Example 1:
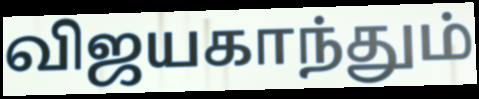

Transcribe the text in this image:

விஜயகாந்தும்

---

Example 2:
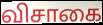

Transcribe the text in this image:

விசாகை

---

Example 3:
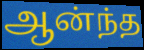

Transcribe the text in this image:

ஆன்ந்த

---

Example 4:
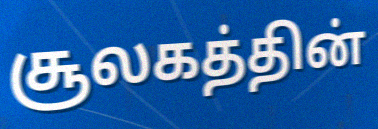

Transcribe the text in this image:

சூலகத்தின்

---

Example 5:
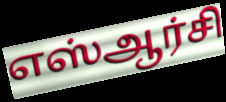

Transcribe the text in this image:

எஸ்ஆர்சி